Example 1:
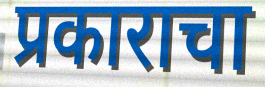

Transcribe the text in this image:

प्रकाराचा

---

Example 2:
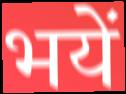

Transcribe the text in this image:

भयें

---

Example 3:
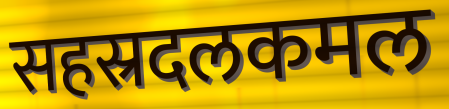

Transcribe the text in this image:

सहस्रदलकमल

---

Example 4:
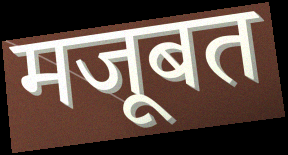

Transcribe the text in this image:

मजूबत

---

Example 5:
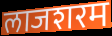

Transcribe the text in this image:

लाजशरम